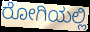
ರೋಗಿಯಲ್ಲಿ